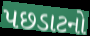
પછડાટનો